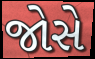
જોસે